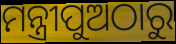
ମନ୍ତ୍ରୀପୁଅଠାରୁ